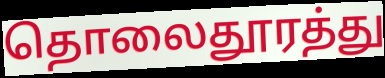
தொலைதூரத்து